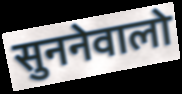
सुननेवालो